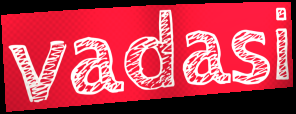
vadasi